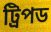
ট্রিপড